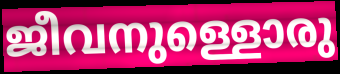
ജീവനുള്ളൊരു